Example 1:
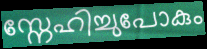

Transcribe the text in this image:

സ്നേഹിച്ചുപോകും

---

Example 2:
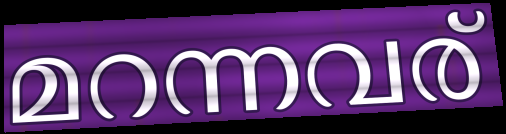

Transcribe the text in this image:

മറന്നവര്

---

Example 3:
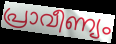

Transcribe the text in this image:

പ്രാവീണ്യം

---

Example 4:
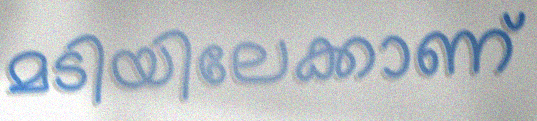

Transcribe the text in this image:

മടിയിലേക്കാണ്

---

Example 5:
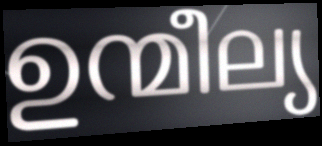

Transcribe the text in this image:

ഉന്മീല്യ